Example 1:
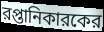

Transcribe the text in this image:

রপ্তানিকারকের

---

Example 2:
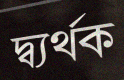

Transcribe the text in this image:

দ্ব্যর্থক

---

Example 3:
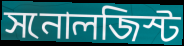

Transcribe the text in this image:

সনোলজিস্ট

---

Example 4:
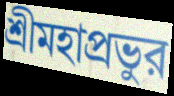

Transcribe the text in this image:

শ্রীমহাপ্রভুর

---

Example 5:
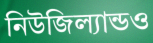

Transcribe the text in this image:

নিউজিল্যান্ডও